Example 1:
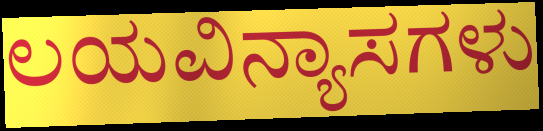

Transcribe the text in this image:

ಲಯವಿನ್ಯಾಸಗಳು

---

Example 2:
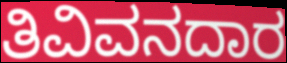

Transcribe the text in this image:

ತಿವಿವನದಾರ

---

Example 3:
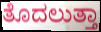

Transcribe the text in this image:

ತೊದಲುತ್ತಾ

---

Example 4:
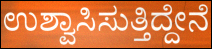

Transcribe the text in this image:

ಉಶ್ವಾಸಿಸುತ್ತಿದ್ದೇನೆ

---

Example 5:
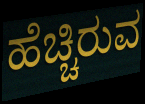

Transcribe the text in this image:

ಹೆಚ್ಚಿರುವ